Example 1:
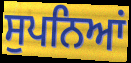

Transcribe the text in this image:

ਸੁਪਨਿਆਂ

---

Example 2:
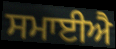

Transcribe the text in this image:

ਸਮਾਈਐ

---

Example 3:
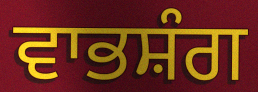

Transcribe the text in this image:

ਵਾਭਸ਼ੰਗ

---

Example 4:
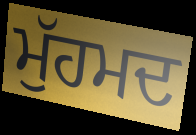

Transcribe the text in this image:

ਮੁੱਹਮਦ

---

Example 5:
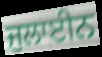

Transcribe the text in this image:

ਜੁਲਾਈਨ